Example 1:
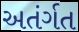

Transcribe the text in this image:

અતંર્ગત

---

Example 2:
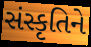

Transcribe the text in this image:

સંસ્કૃતિને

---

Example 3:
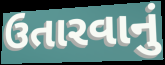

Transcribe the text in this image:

ઉતારવાનું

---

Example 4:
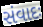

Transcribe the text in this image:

સંવાદઃ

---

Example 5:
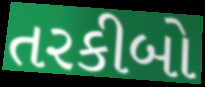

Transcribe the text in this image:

તરકીબો